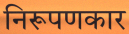
निरूपणकार